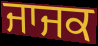
ਜਾਜਕ